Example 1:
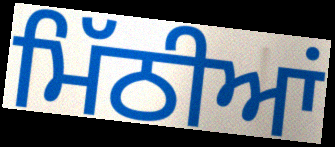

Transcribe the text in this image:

ਮਿੱਠੀਆਂ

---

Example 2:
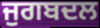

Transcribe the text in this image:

ਜੁਗਬਦਲ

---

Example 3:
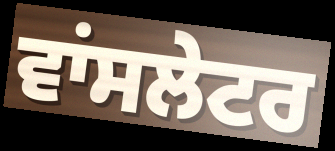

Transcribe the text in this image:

ਵਾਂਸਲੇਟਰ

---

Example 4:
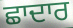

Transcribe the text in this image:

ਛਾਦਾਰ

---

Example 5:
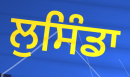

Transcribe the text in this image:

ਲੁਸਿੰਡਾ